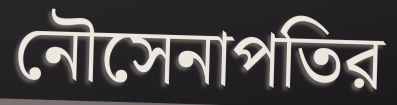
নৌসেনাপতির